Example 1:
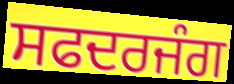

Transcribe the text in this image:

ਸਫਦਰਜੰਗ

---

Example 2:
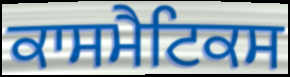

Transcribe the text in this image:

ਕਾਸਮੈਟਿਕਸ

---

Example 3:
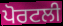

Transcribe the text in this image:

ਪੋਰਟਲੀ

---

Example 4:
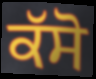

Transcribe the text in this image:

ਕੱਸੋ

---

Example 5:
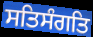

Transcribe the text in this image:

ਸਤਿਸੰਗਤਿ